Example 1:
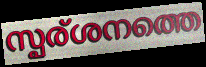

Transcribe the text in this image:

സ്പര്ശനത്തെ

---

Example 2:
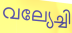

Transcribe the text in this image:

വല്യേച്ചി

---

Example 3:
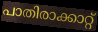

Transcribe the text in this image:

പാതിരാക്കാറ്റ്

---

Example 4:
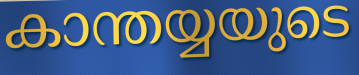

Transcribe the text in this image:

കാന്തയ്യയുടെ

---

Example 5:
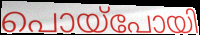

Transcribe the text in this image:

പൊയ്പോയി